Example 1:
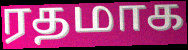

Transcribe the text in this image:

ரதமாக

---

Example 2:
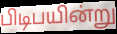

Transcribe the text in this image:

பிடிபயின்று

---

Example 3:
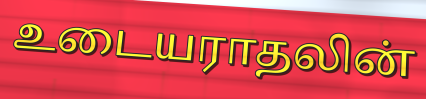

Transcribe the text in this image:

உடையராதலின்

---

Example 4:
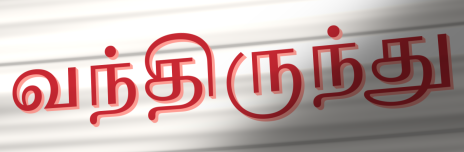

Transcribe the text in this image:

வந்திருந்து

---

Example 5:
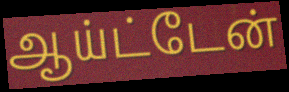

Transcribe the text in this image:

ஆய்ட்டேன்